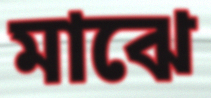
মাঝে